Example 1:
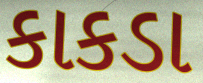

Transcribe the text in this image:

કાકડા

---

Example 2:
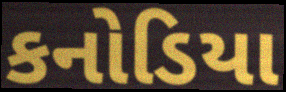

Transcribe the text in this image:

કનોડિયા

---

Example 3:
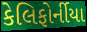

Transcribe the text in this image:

કેલિફોર્નીયા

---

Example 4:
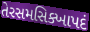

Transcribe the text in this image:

તેરસમસિક્ખાપદં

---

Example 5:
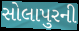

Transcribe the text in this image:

સોલાપુરની